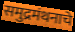
समुद्रमंथनाचे